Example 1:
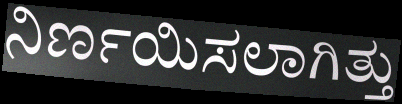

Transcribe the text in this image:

ನಿರ್ಣಯಿಸಲಾಗಿತ್ತು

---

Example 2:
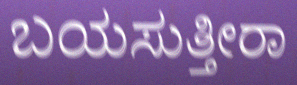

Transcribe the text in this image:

ಬಯಸುತ್ತೀರಾ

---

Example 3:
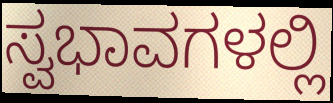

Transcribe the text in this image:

ಸ್ವಭಾವಗಳಲ್ಲಿ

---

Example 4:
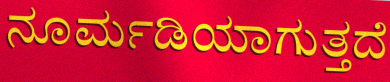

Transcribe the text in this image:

ನೂರ್ಮಡಿಯಾಗುತ್ತದೆ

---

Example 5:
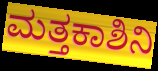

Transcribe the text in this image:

ಮತ್ತಕಾಶಿನಿ